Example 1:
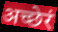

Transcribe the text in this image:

अच्छेरं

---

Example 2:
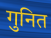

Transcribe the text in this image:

गुनित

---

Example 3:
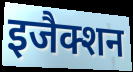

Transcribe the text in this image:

इजैक्शन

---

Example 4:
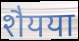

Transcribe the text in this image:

शैयया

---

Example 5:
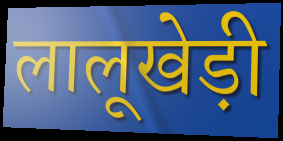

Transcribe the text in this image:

लालूखेड़ी